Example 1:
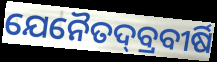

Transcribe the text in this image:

ଯେନୈତଦ୍‌ବ୍ରବୀର୍ଷି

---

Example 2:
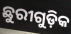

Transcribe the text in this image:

ଛୁରୀଗୁଡ଼ିକ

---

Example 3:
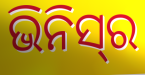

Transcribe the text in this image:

ଭିନିସ୍‌ର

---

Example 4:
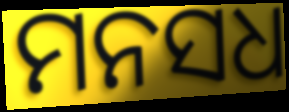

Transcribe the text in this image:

ମନସଧ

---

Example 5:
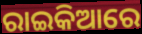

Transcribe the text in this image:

ରାଇକିଆରେ